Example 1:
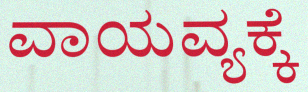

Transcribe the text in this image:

ವಾಯವ್ಯಕ್ಕೆ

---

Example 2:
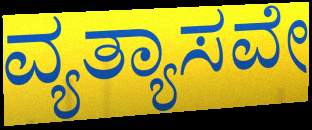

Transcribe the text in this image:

ವ್ಯತ್ಯಾಸವೇ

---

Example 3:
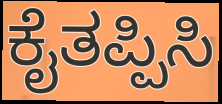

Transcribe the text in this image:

ಕೈತಪ್ಪಿಸಿ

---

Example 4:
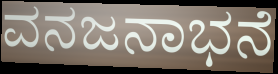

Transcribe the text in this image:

ವನಜನಾಭನೆ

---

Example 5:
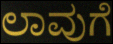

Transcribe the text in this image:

ಲಾವುಗೆ